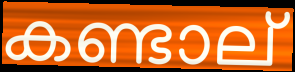
കണ്ടാല്